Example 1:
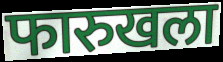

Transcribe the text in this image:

फारुखला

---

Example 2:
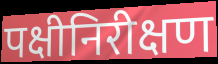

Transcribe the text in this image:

पक्षीनिरीक्षण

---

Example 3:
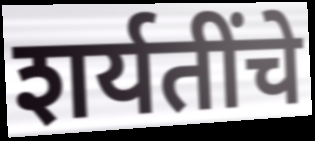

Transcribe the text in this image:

शर्यतींचे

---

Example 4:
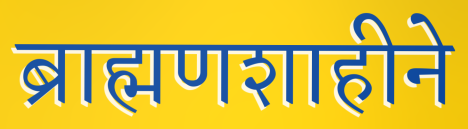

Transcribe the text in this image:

ब्राह्मणशाहीने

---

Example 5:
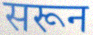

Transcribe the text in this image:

सरून